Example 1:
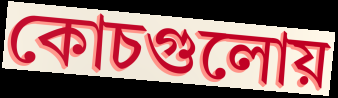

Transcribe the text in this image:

কোচগুলোয়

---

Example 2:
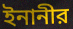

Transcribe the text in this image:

ইনানীর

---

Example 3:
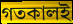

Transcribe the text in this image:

গতকালই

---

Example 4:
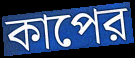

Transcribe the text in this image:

কাপের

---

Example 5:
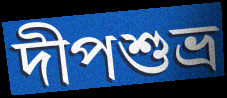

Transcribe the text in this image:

দীপশুভ্র